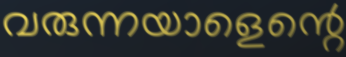
വരുന്നയാളെന്റെ